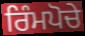
ਰਿੰਮਪੋਚੇ